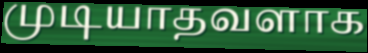
முடியாதவளாக